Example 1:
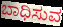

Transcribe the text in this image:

ಬಾಧಿಸುವ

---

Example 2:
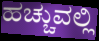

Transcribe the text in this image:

ಹಚ್ಚುವಲ್ಲಿ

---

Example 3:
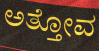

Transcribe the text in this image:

ಅತ್ತೋವ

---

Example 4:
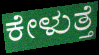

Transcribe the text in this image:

ಕೇಳುತ್ತೆ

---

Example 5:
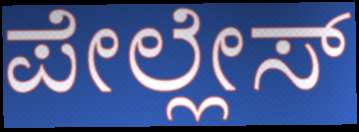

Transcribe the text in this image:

ಪೇಲ್ಲೇಸ್